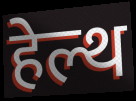
हेल्थ